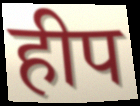
हीप